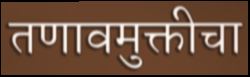
तणावमुक्तीचा